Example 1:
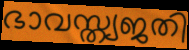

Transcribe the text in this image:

ഭാവസ്ത്യജതി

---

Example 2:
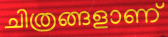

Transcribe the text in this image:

ചിത്രങ്ങളാണ്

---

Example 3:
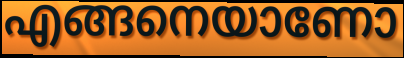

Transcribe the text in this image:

എങ്ങനെയാണോ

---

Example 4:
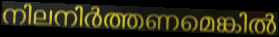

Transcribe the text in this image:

നിലനിർത്തണമെങ്കിൽ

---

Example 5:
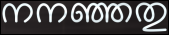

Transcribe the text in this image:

നനഞ്ഞതു